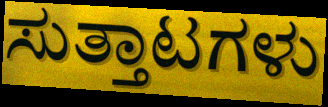
ಸುತ್ತಾಟಗಳು